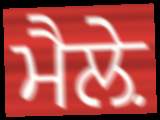
ਮੈਲ਼ੇ